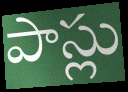
పాస్లు